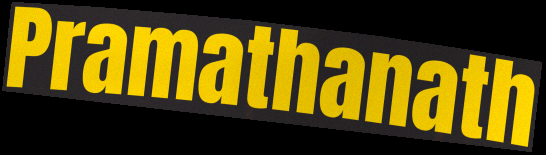
Pramathanath